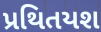
પ્રથિતયશ